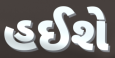
હઈશે